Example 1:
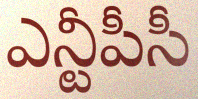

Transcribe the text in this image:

ఎన్టీపీసీ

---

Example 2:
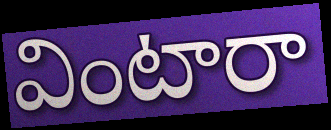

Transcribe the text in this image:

వింటారా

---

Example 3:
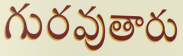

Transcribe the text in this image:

గురవుతారు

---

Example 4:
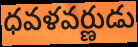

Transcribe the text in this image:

ధవళవర్ణుడు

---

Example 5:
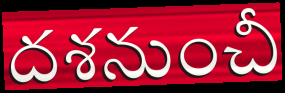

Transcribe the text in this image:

దశనుంచీ